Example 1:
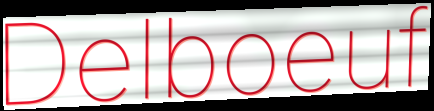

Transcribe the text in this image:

Delboeuf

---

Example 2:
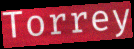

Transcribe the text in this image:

Torrey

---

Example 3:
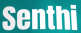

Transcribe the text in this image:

Senthi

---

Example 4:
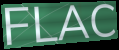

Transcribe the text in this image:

FLAC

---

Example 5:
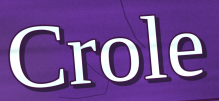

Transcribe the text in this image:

Crole